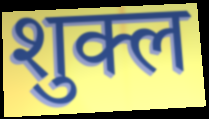
शुक्ल